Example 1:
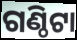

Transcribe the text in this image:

ଗଣ୍ଠିଟା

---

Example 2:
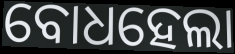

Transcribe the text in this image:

ବୋଧହେଲା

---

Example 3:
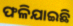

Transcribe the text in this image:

ଫଳିଯାଇଛି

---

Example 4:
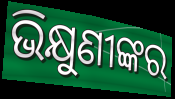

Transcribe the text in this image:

ଭିକ୍ଷୁଣୀଙ୍କର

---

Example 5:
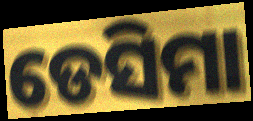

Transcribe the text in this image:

ଡେସିମା